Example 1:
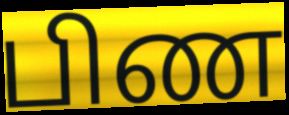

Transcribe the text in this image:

பிண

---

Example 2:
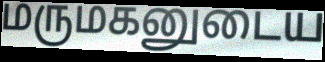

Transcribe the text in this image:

மருமகனுடைய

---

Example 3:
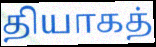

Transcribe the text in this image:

தியாகத்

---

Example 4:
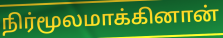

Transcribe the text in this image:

நிர்மூலமாக்கினான்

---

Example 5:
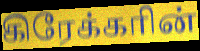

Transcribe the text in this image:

கிரேக்கரின்